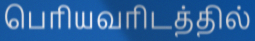
பெரியவரிடத்தில்